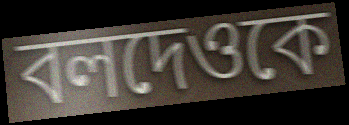
বলদেওকে